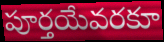
పూర్తయేవరకూ